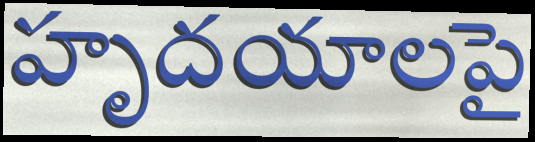
హృదయాలపై